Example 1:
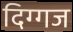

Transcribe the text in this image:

दिग्गज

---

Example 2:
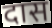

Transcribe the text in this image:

दास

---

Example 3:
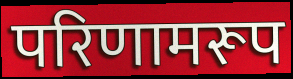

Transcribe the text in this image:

परिणामरूप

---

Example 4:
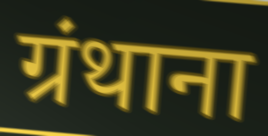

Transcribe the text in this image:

ग्रंथाना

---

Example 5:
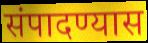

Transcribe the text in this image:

संपादण्यास